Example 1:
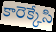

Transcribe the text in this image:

కారెక్కేసి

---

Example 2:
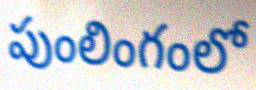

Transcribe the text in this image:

పుంలింగంలో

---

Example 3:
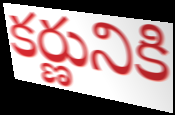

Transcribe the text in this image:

కర్ణునికి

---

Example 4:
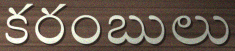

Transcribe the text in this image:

కరంబులు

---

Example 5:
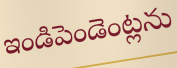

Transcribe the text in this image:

ఇండిపెండెంట్లను